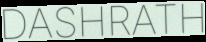
DASHRATH